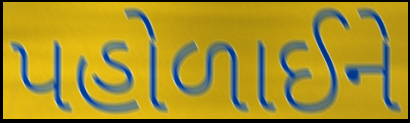
પહોળાઈને